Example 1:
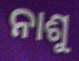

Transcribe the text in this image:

ନାଶୁ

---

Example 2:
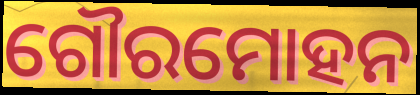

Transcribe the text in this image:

ଗୌରମୋହନ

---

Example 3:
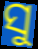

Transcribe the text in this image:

ସୁ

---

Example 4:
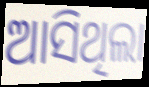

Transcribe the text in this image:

ଆସିଥିଲା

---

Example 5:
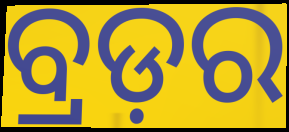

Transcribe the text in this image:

ବ୍ରଡ଼ର